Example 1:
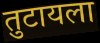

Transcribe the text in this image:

तुटायला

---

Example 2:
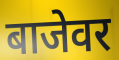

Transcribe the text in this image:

बाजेवर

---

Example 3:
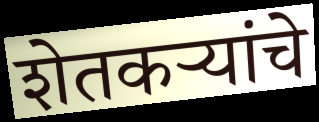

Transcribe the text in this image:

शेतकऱ्यांचे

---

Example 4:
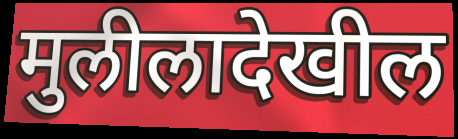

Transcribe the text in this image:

मुलीलादेखील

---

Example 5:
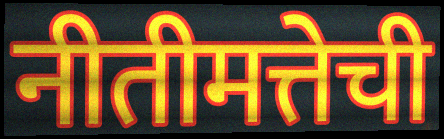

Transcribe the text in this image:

नीतीमत्तेची